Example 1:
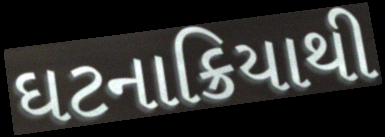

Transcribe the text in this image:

ઘટનાક્રિયાથી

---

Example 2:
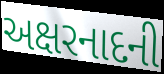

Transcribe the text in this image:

અક્ષરનાદની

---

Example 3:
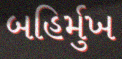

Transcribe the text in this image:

બહિર્મુખ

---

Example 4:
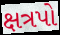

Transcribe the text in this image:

ક્ષત્રપો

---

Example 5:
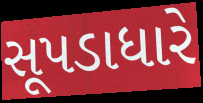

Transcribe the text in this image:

સૂપડાધારે